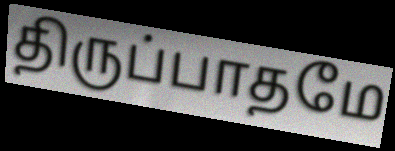
திருப்பாதமே